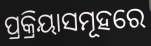
ପ୍ରକ୍ରିୟାସମୂହରେ